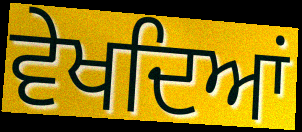
ਵੇਖਦਿਆਂ